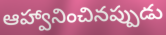
ఆహ్వానించినప్పుడు